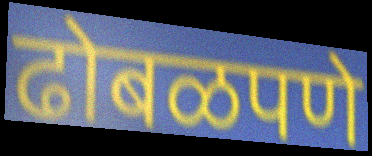
ढोबळपणे